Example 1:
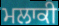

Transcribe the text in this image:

ਮਲਾਕੀ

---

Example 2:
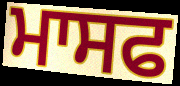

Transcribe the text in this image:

ਮਾਸਫ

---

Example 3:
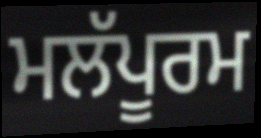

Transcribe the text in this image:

ਮਲੱਪੂਰਮ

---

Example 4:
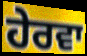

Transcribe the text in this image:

ਹੇਰਵਾ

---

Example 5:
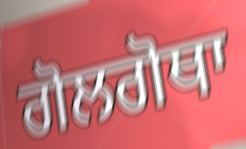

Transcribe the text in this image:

ਗੋਲਗੋਥਾ